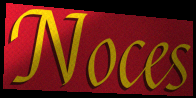
Noces